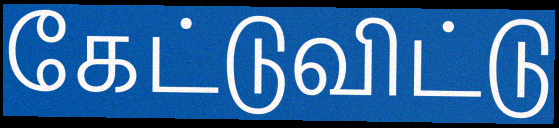
கேட்டுவிட்டு